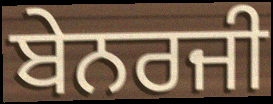
ਬੇਨਰਜੀ